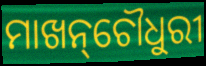
ମାଖନ୍‌ଚୌଧୁରୀ